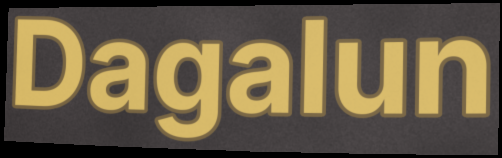
Dagalun